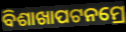
ବିଶାଖାପଟନମ୍ରେ